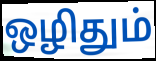
ஒழிதும்